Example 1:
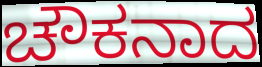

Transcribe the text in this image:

ಚೌಕನಾದ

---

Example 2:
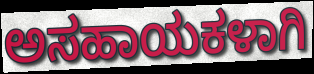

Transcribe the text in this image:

ಅಸಹಾಯಕಳಾಗಿ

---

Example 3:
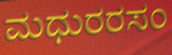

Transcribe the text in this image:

ಮಧುರರಸಂ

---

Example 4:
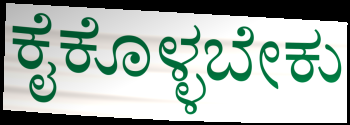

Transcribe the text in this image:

ಕೈಕೊಳ್ಳಬೇಕು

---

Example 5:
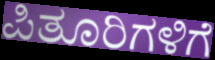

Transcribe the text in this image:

ಪಿತೂರಿಗಳಿಗೆ